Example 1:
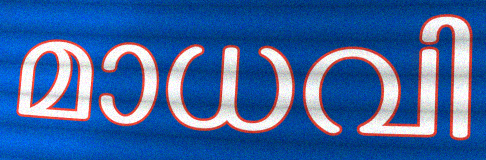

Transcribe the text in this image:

മാധവി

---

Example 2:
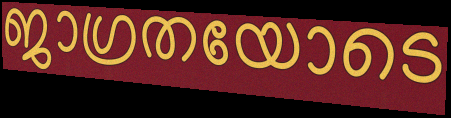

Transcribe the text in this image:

ജാഗ്രതയോടെ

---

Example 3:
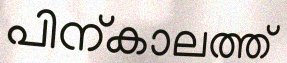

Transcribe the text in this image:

പിന്കാലത്ത്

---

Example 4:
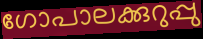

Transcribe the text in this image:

ഗോപാലക്കുറുപ്പു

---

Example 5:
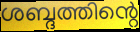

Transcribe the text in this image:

ശബ്ദത്തിന്റെ